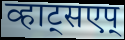
व्हाट्सएप्